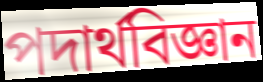
পদাৰ্থবিজ্ঞান